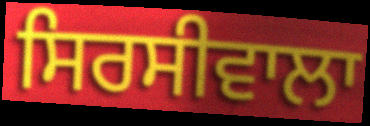
ਸਿਰਸੀਵਾਲਾ